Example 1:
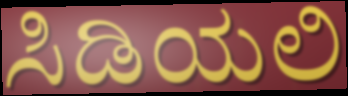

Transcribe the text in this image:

ಸಿಡಿಯಲಿ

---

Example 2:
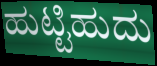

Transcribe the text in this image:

ಹುಟ್ಟಿಹುದು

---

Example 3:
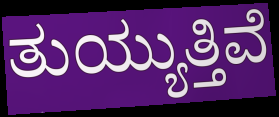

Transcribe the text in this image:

ತುಯ್ಯುತ್ತಿವೆ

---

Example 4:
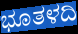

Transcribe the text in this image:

ಭೂತಳದಿ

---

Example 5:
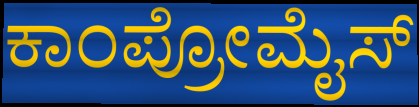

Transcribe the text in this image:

ಕಾಂಪ್ರೋಮೈಸ್